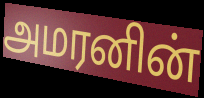
அமரனின்